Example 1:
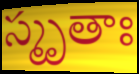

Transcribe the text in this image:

స్మృతాః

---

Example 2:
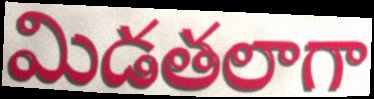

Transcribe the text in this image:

మిడతలాగా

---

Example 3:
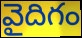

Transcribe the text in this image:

వైదిగం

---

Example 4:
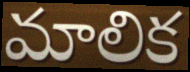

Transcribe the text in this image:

మాలిక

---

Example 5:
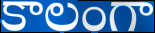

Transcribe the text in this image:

కాలంగా